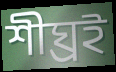
শীঘ্ৰই